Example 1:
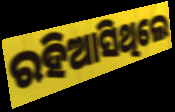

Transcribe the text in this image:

ରହିଆସିଥିଲେ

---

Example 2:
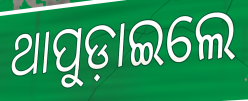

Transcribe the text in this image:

ଥାପୁଡ଼ାଇଲେ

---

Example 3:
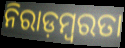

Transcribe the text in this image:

ନିରାଡ଼ମ୍ବରତା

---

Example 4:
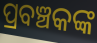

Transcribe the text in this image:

ପ୍ରବଞ୍ଚକଙ୍କ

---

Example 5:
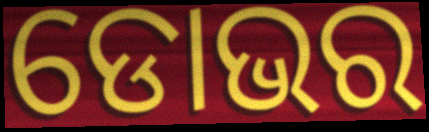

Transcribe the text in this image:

ଡୋଭର